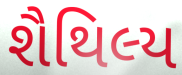
શૈથિલ્ય